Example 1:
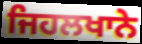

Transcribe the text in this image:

ਜਿਹਲਖਾਨੇ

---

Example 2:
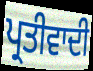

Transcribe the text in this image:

ਪ੍ਰਤੀਵਾਦੀ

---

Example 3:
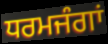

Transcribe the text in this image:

ਧਰਮਜੰਗਾਂ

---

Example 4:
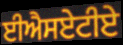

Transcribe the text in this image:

ਈਐਸਏਟੀਏ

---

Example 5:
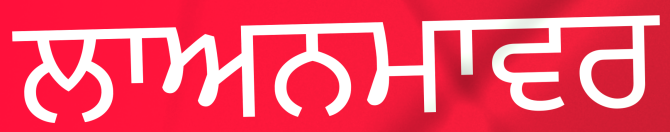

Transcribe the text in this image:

ਲਾਅਨਮਾਵਰ